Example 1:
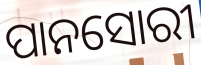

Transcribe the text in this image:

ପାନସୋରୀ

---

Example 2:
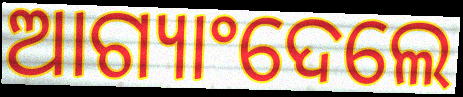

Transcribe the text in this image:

ଆଗ୍ୟାଂଦେଲେ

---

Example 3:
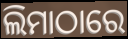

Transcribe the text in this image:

ଲିମାଠାରେ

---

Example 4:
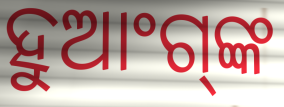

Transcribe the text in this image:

ହୁଆଂଗ୍‍ଙ୍କ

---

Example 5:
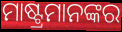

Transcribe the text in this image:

ମାଷ୍ଟ୍ରମାନଙ୍କର